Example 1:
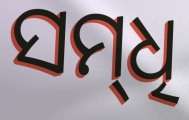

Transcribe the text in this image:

ସମ୍‌ଧି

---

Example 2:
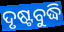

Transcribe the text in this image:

ଦୃଷ୍ଟବୁଦ୍ଧି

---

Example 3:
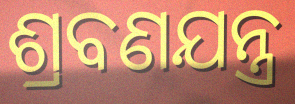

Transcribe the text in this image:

ଶ୍ରବଣଯନ୍ତ୍ର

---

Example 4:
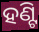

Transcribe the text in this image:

ହଣ୍ଟି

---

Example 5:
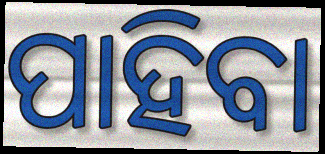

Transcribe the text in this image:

ପାହିବା